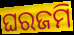
ଘରଜମି